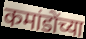
कमांडोंच्या